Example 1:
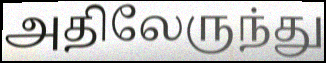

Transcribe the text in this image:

அதிலேருந்து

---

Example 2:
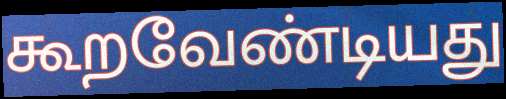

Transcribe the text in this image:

கூறவேண்டியது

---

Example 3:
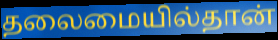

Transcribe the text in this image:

தலைமையில்தான்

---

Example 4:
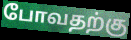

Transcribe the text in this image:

போவதற்கு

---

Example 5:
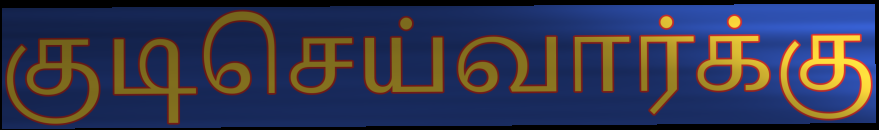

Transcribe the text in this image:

குடிசெய்வார்க்கு